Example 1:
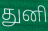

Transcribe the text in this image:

துனி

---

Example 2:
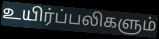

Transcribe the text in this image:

உயிர்ப்பலிகளும்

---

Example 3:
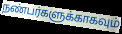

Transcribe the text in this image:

நண்பர்களுக்காகவும்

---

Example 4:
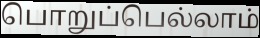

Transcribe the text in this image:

பொறுப்பெல்லாம்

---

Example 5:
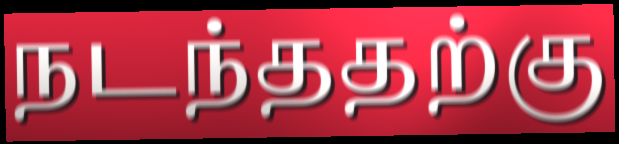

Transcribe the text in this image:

நடந்ததற்கு